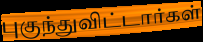
புகுந்துவிட்டார்கள்